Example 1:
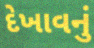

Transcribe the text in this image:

દેખાવનું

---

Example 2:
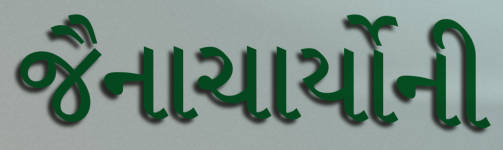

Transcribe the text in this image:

જૈનાચાર્યોની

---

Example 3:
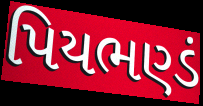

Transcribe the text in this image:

પિયભણ્ડં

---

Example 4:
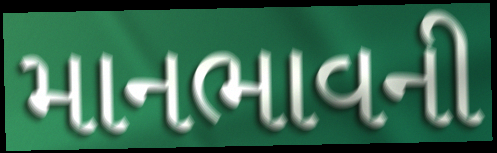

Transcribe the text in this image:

માનભાવની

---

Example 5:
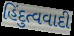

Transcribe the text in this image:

હિંદુત્વવાદી